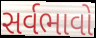
સર્વભાવો